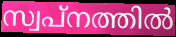
സ്വപ്നത്തിൽ